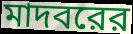
মাদবরের